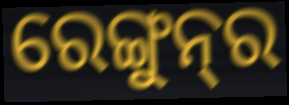
ରେଙ୍ଗୁନ୍‌ର